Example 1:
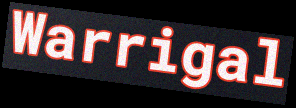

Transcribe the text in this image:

Warrigal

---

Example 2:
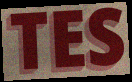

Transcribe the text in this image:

TES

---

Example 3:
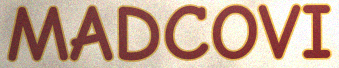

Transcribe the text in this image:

MADCOVI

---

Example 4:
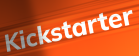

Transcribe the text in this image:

Kickstarter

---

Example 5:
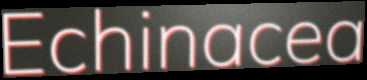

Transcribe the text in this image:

Echinacea